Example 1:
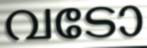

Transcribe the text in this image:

വടോ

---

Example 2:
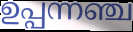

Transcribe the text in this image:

ഉപ്പന്നഞ്ച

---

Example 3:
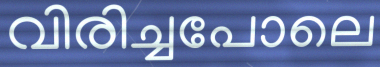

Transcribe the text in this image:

വിരിച്ചപോലെ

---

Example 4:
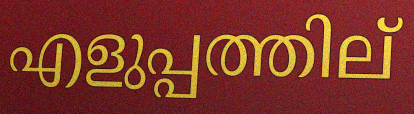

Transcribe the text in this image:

എളുപ്പത്തില്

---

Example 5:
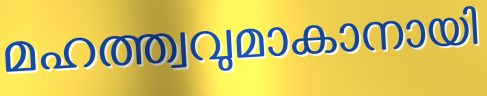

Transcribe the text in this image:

മഹത്ത്വവുമാകാനായി